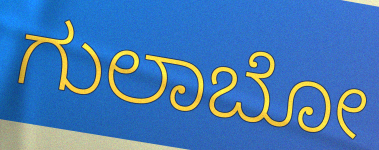
ಗುಲಾಬೋ